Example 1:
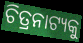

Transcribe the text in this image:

ଚିତ୍ରନାଟ୍ୟକୁ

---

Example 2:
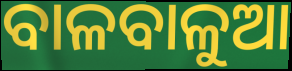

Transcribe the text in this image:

ବାଳବାଳୁଆ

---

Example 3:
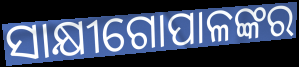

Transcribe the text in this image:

ସାକ୍ଷୀଗୋପାଳଙ୍କର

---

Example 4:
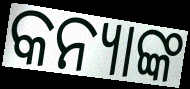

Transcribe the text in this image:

କନ୍ୟାଙ୍କ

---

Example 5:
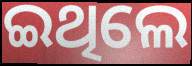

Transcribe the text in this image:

ଇଥିଲେ